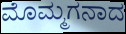
ಮೊಮ್ಮಗನಾದ